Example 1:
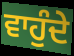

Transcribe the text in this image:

ਵਾਹੁੰਦੇ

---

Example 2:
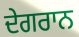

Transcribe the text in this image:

ਦੇਗਰਾਨ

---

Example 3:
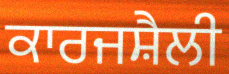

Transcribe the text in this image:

ਕਾਰਜਸ਼ੈਲੀ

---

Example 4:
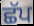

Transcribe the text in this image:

ਛੱਪ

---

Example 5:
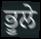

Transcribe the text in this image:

ਭੂਲੇ